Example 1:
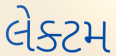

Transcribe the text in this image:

લેક્ટમ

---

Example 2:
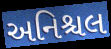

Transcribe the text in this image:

અનિશ્ચલ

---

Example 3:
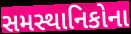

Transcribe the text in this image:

સમસ્થાનિકોના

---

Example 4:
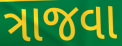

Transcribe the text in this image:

ત્રાજવા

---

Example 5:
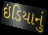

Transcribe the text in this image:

ઇંડિયાનું